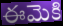
ఈమెకి